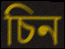
চিন